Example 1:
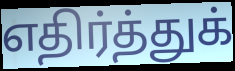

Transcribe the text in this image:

எதிர்த்துக்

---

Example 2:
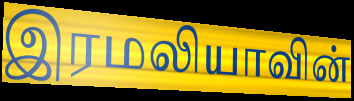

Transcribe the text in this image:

இரமலியாவின்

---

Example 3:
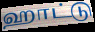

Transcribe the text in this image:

ஹாட்டு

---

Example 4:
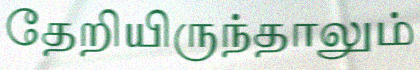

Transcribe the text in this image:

தேறியிருந்தாலும்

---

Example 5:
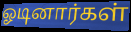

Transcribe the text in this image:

ஓடினார்கள்